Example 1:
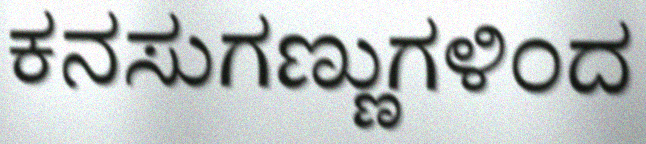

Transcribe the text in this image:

ಕನಸುಗಣ್ಣುಗಳಿಂದ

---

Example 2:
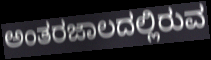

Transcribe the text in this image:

ಅಂತರಜಾಲದಲ್ಲಿರುವ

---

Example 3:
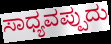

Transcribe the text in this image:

ಸಾಧ್ಯವಪ್ಪುದು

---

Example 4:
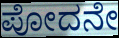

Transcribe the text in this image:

ಪೋದನೇ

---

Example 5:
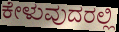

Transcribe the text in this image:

ಕೇಳುವುದರಲ್ಲಿ